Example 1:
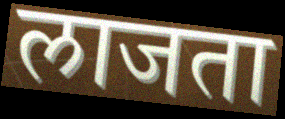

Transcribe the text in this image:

लाजता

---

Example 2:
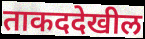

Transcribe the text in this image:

ताकददेखील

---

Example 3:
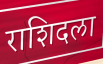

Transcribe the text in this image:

राशिदला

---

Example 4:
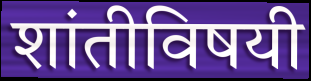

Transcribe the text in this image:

शांतीविषयी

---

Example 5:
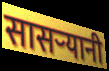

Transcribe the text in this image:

सासऱ्यानी